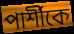
পার্শীকে